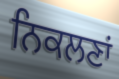
ਨਿਕਲਣਾਂ